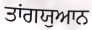
ਤਾਂਗਯੁਆਨ